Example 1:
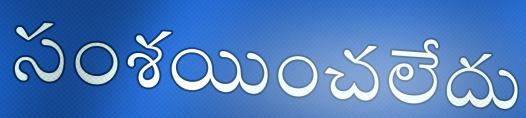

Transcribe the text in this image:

సంశయించలేదు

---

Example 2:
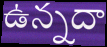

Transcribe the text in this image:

ఉన్నదా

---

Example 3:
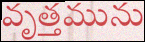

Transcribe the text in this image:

వృత్తమును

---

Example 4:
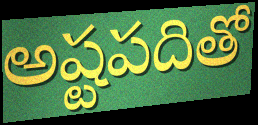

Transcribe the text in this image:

అష్టపదితో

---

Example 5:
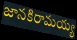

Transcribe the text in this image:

జానకిరామయ్య